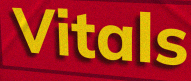
Vitals